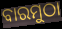
ବାରମୁଠା